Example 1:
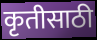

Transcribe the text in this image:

कृतीसाठी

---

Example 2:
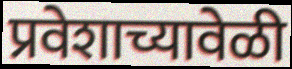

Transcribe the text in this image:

प्रवेशाच्यावेळी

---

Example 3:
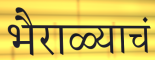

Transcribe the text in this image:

भैराळ्याचं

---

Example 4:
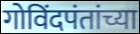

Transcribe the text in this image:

गोविंदपंतांच्या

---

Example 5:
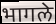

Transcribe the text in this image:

भागले